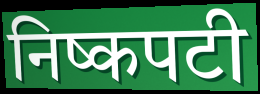
निष्कपटी